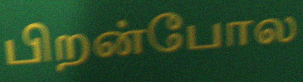
பிறன்போல